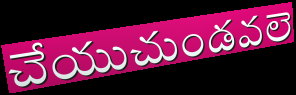
చేయుచుండవలె